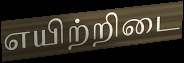
எயிற்றிடை